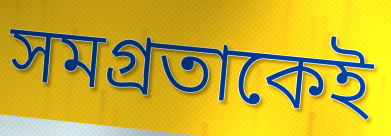
সমগ্রতাকেই